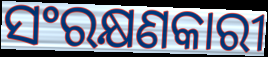
ସଂରକ୍ଷଣକାରୀ